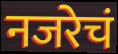
नजरेचं